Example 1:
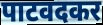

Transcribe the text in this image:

पाटवदकर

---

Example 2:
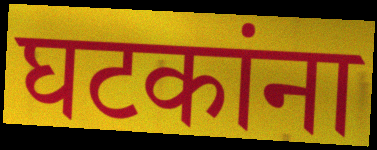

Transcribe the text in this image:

घटकांना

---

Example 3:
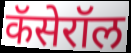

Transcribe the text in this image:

कॅसेरॉल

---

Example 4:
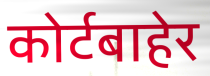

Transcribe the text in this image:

कोर्टबाहेर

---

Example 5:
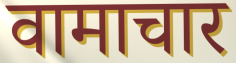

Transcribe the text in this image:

वामाचार